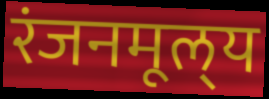
रंजनमूल्य